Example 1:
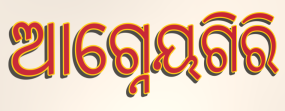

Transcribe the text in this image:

ଆଗ୍ନେୟଗିରି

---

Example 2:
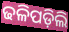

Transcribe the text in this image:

ଢଳିପଡ଼ିଲି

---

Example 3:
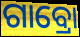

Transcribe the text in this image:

ଗାବ୍ରୋ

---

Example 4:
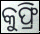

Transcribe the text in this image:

କୁଫ୍ରି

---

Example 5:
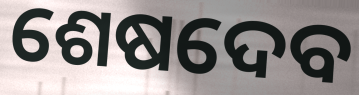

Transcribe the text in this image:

ଶେଷଦେବ